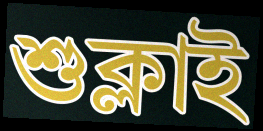
শুক্লাই